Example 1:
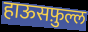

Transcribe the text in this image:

हाऊसफ़ुल्ल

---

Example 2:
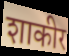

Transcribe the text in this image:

शाकीर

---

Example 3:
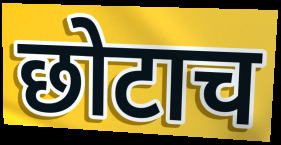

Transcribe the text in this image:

छोटाच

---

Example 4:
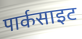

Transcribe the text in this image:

पार्कसाइट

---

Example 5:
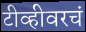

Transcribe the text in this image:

टीव्हीवरचं